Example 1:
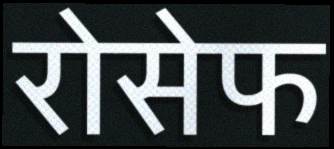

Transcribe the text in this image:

रोसेफ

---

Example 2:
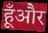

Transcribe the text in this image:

हूँऔर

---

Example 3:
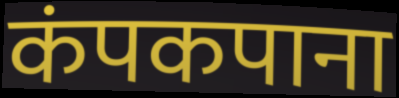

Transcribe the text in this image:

कंपकपाना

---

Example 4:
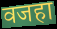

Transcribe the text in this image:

वजहा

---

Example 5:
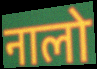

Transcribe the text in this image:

नालो